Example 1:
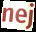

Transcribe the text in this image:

nej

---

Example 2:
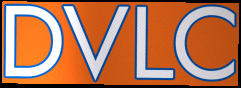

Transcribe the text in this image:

DVLC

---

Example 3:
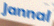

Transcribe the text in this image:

Jannal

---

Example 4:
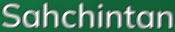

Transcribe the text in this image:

Sahchintan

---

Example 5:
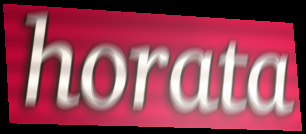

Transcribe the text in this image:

horata